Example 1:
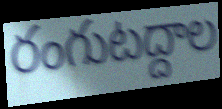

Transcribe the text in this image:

రంగుటద్దాల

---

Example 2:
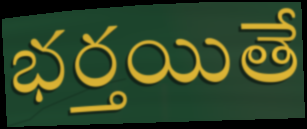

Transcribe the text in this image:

భర్తయితే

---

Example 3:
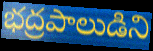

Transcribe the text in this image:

భద్రపాలుడిని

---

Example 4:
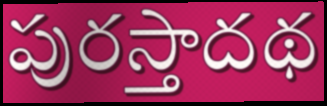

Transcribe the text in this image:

పురస్తాదథ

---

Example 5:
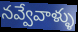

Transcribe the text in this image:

నవ్వేవాళ్ళు